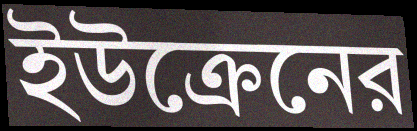
ইউক্রেনের